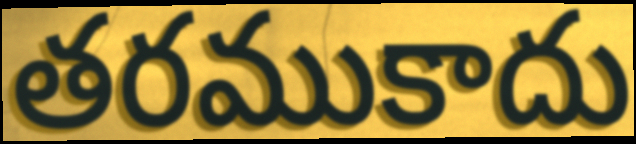
తరముకాదు